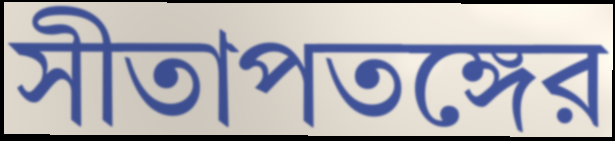
সীতাপতঙ্গের